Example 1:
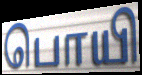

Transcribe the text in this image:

பொயி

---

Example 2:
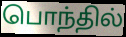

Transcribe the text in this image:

பொந்தில்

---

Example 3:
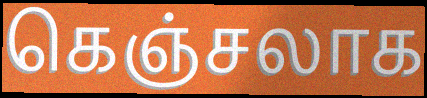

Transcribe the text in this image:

கெஞ்சலாக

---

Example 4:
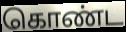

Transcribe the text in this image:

கொண்ட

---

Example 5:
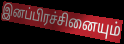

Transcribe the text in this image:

இனப்பிரச்சினையும்